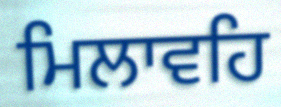
ਮਿਲਾਵਹਿ